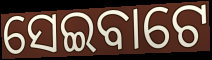
ସେଇବାଟେ